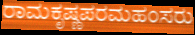
ರಾಮಕೃಷ್ಣಪರಮಹಂಸರು